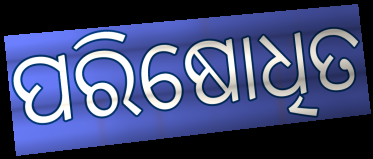
ପରିଷୋଧିତ